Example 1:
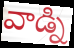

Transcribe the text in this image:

వాడ్ని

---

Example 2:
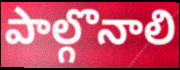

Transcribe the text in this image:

పాల్గొనాలి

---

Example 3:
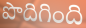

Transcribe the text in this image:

పొదిగింది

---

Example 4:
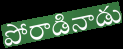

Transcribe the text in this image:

పోరాడినాడు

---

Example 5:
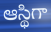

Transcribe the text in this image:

ఆస్థిగా